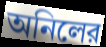
অনিলের